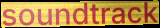
soundtrack